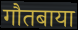
गौतबाया